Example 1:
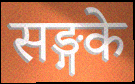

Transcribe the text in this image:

सङ्गके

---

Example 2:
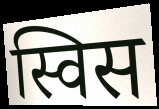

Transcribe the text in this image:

स्विस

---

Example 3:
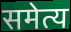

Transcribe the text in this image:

समेत्य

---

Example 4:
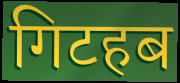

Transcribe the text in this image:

गिटहब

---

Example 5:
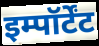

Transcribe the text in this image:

इम्पॉर्टेंट